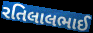
રતિલાલભાઈ